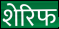
शेरिफ